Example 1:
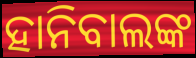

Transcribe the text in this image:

ହାନିବାଲଙ୍କ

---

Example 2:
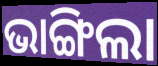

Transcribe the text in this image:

ଭାଙ୍ଗିଲା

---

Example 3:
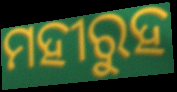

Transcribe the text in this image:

ମହୀରୁହ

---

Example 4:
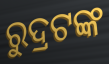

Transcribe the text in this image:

ରୁଦ୍ରଟଙ୍କ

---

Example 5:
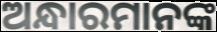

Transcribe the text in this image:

ଅନ୍ଧାରମାନଙ୍କ